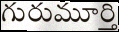
గురుమూర్తి